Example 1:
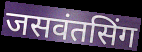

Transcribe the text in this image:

जसवंतसिंग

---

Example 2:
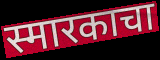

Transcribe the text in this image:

स्मारकाचा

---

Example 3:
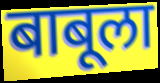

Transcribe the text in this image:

बाबूला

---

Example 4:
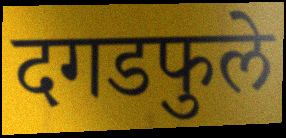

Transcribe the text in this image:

दगडफुले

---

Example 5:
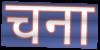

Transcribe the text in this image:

चना